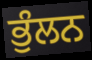
ਭੁੰਲਨ